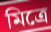
মিত্রে